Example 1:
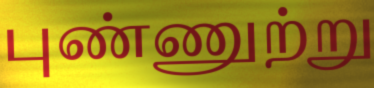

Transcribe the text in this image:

புண்ணுற்று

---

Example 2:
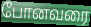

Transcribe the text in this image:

போனவரை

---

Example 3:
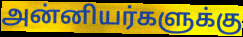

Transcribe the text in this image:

அன்னியர்களுக்கு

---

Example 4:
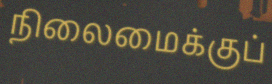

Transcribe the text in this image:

நிலைமைக்குப்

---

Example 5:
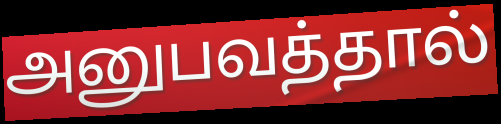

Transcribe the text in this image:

அனுபவத்தால்